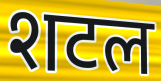
शटल